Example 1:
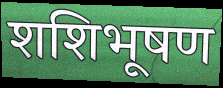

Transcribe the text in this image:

शशिभूषण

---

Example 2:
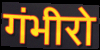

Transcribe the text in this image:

गंभीरो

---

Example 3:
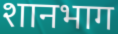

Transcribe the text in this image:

शानभाग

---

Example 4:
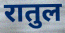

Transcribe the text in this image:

रातुल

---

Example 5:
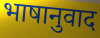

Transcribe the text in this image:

भाषानुवाद